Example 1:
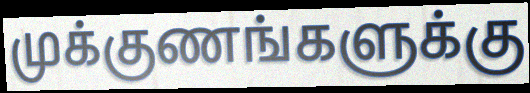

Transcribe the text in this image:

முக்குணங்களுக்கு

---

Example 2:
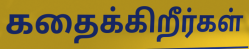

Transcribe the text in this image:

கதைக்கிறீர்கள்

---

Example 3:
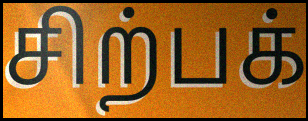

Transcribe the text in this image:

சிற்பக்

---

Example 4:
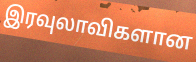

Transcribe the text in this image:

இரவுலாவிகளான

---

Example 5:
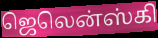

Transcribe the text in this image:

ஜெலென்ஸ்கி